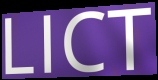
LICT